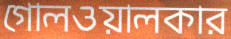
গোলওয়ালকার